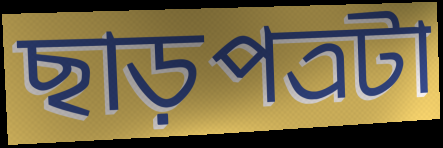
ছাড়পত্রটা